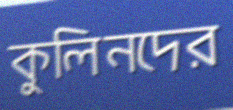
কুলিনদের